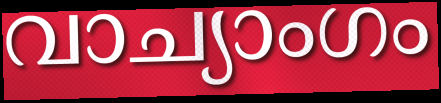
വാച്യാംഗം